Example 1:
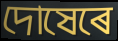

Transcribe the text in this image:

দোষেৰে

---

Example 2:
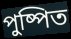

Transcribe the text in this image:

পুষ্পিত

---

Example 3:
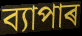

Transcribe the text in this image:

ব্যাপাৰ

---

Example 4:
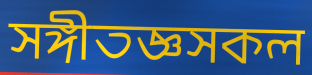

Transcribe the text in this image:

সঙ্গীতজ্ঞসকল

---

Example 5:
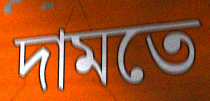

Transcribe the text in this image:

দামতে